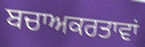
ਬਚਾਅਕਰਤਾਵਾਂ